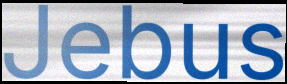
Jebus